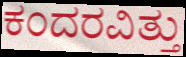
ಕಂದರವಿತ್ತು